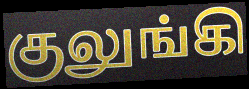
குலுங்கி